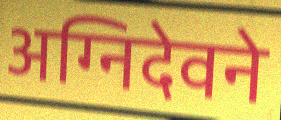
अग्निदेवने